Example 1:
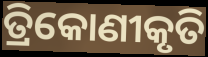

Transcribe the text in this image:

ତ୍ରିକୋଣୀକୃତି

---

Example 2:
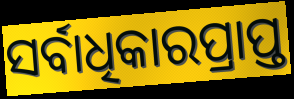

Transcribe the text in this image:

ସର୍ବାଧିକାରପ୍ରାପ୍ତ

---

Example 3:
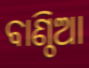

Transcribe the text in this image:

ବାଣ୍ଠିଆ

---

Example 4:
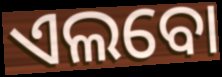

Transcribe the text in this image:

ଏଲବୋ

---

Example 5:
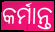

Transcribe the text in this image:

କର୍ମାନ୍ତ